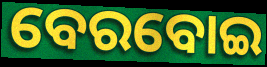
ବେରବୋଇ